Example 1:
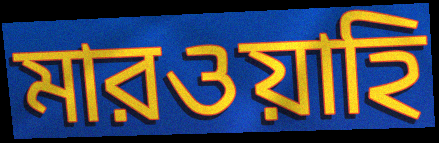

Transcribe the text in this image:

মারওয়াহি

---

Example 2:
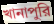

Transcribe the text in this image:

খানাপুরি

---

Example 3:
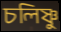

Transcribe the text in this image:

চলিষ্ণু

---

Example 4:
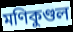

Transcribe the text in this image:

মণিকুণ্ডল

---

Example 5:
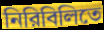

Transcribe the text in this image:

নিরিবিলিতে